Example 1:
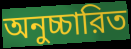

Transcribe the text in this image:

অনুচ্চারিত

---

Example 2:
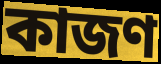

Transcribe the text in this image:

কাজণ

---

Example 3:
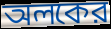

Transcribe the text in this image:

অলকের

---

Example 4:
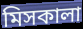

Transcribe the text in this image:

মিসকালা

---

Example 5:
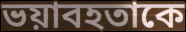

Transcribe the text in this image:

ভয়াবহতাকে